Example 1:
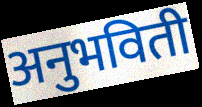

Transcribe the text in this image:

अनुभविती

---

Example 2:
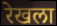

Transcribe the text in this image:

रेखला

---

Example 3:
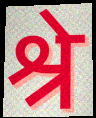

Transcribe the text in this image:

श्रे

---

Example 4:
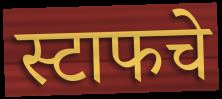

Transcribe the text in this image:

स्टाफचे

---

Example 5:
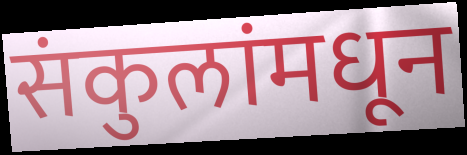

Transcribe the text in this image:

संकुलांमधून